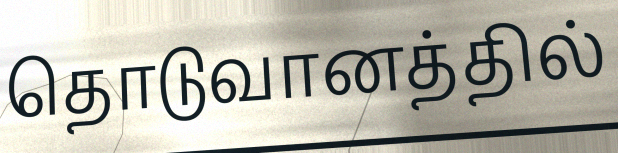
தொடுவானத்தில்